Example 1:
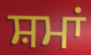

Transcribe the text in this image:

ਸ਼ਮਾਂ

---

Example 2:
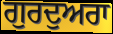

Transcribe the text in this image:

ਗੁਰਦੁਅਰਾ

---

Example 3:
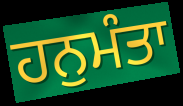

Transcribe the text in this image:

ਹਨੁਮੰਤਾ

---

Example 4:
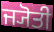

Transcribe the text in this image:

ਜ੍ਯੋਤੀ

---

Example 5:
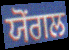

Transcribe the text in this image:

ਯੋਂਗਲ